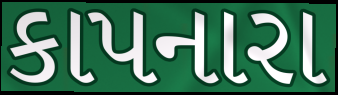
કાપનારા